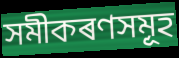
সমীকৰণসমূহ